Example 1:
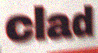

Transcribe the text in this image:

clad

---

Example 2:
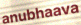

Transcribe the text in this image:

anubhaava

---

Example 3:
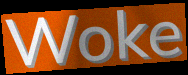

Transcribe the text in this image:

Woke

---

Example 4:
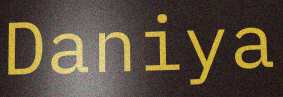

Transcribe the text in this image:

Daniya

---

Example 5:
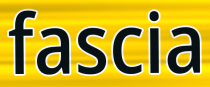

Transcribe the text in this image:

fascia